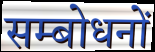
सम्बोधनों